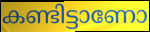
കണ്ടിട്ടാണോ